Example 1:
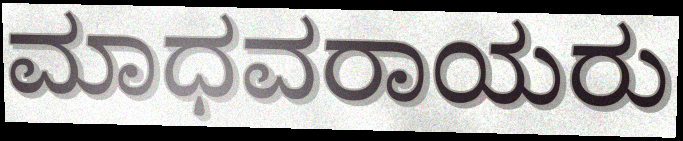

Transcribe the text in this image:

ಮಾಧವರಾಯರು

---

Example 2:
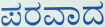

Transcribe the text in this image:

ಪರವಾದ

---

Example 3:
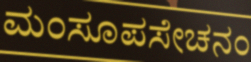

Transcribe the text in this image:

ಮಂಸೂಪಸೇಚನಂ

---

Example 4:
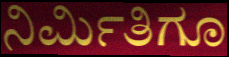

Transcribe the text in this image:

ನಿರ್ಮಿತಿಗೂ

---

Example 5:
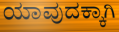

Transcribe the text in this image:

ಯಾವುದಕ್ಕಾಗಿ